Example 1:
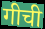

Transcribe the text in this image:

गीची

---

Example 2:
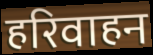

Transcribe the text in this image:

हरिवाहन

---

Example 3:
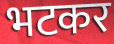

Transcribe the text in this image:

भटकर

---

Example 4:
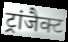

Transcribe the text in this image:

ट्रांजैक्ट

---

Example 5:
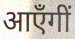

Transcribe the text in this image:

आएँगीं